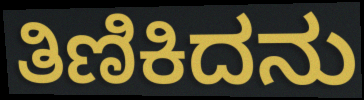
ತಿಣಿಕಿದನು